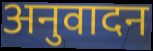
अनुवादन